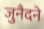
जुनैदने